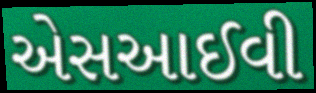
એસઆઈવી